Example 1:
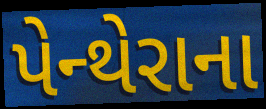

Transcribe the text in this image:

પેન્થેરાના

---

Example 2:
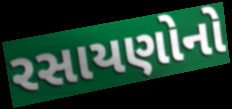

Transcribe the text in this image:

રસાયણોનો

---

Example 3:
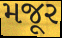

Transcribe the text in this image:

મજૂર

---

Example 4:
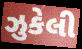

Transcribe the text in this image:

ઝુકેલી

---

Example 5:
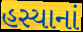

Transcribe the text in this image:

હસ્યાનાં